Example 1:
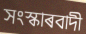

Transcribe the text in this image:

সংস্কাৰবাদী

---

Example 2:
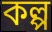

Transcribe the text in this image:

কল্প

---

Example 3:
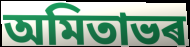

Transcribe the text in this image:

অমিতাভৰ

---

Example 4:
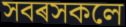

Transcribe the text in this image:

সবৰসকলে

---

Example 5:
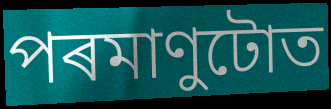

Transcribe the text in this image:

পৰমাণুটোত